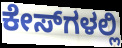
ಕೇಸ್‌ಗಳಲ್ಲಿ